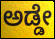
ಅಡ್ಡೇ